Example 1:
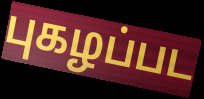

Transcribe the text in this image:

புகழப்பட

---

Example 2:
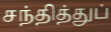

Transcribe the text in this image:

சந்தித்துப்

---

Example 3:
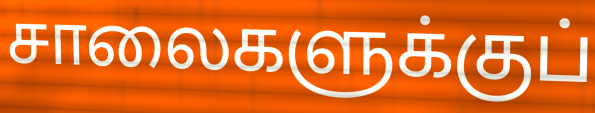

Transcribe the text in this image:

சாலைகளுக்குப்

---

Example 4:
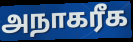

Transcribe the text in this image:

அநாகரீக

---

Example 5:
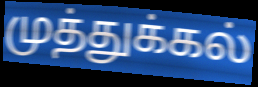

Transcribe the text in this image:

முத்துக்கல்